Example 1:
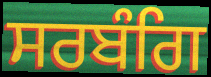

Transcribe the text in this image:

ਸਰਬੰਗਿ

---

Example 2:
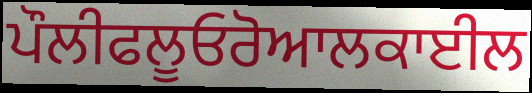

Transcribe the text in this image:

ਪੌਲੀਫਲੂਓਰੋਆਲਕਾਈਲ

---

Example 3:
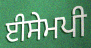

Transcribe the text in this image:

ਈਸੇਮਪੀ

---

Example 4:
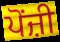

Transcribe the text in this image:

ਪੋਂਜ਼ੀ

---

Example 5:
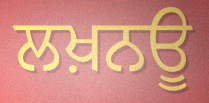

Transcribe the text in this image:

ਲਖ਼ਨਊ